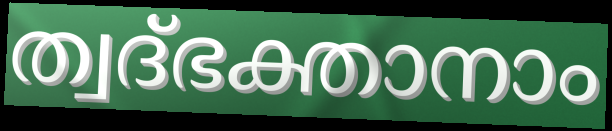
ത്വദ്ഭക്താനാം